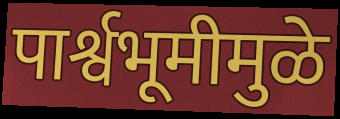
पार्श्वभूमीमुळे